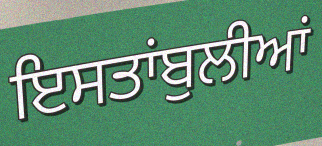
ਇਸਤਾਂਬੁਲੀਆਂ